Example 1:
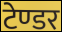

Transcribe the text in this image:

टेण्‍डर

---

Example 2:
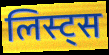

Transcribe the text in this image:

लिस्ट्स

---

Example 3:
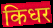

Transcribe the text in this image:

किधर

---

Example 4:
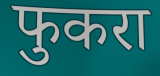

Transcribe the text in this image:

फुकरा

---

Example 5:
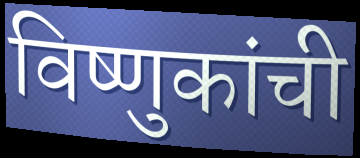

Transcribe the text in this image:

विष्णुकांची